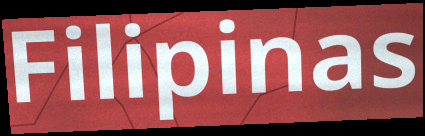
Filipinas